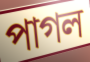
পাগল